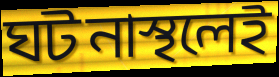
ঘটনাস্থলেই